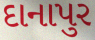
દાનાપુર